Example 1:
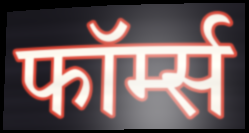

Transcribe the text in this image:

फॉर्म्स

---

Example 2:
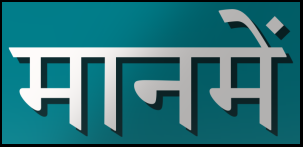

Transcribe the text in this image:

मानमें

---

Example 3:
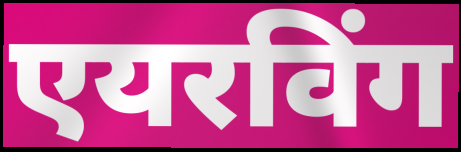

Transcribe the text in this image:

एयरविंग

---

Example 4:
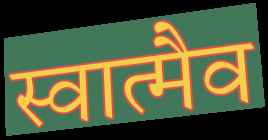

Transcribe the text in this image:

स्वात्मैव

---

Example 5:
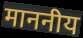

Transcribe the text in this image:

माननीय